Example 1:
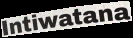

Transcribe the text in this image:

Intiwatana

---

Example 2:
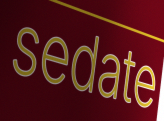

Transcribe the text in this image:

sedate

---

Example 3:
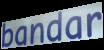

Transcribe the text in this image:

bandar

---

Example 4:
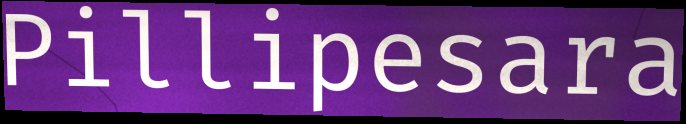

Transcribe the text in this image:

Pillipesara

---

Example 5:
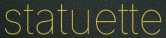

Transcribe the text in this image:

statuette